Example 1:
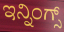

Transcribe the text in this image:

ಇನ್ನಿಂಗ್ಸ್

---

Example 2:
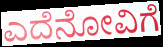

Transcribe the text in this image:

ಎದೆನೋವಿಗೆ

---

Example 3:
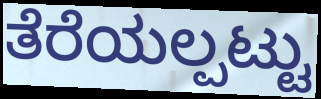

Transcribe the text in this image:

ತೆರೆಯಲ್ಪಟ್ಟು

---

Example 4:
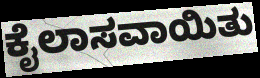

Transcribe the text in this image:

ಕೈಲಾಸವಾಯಿತು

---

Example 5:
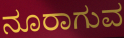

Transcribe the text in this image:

ನೂರಾಗುವ